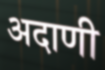
अदाणी